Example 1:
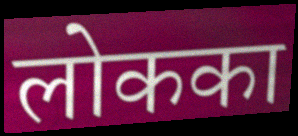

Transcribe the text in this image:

लोकका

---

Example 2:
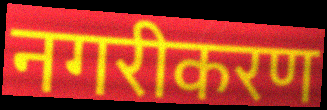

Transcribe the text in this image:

नगरीकरण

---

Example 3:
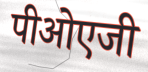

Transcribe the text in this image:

पीओएजी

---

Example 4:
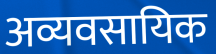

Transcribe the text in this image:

अव्यवसायिक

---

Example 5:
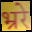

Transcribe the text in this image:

भ्ररे